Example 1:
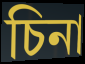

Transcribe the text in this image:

চিনা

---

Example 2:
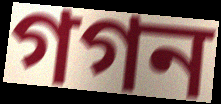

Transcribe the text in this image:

গগন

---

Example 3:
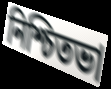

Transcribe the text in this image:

নিশ্চিতভা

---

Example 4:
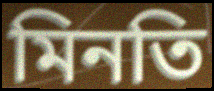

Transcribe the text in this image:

মিনতি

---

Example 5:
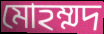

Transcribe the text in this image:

মোহম্মদ